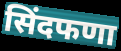
सिंदफणा